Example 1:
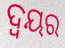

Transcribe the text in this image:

ଦ୍ଵୟର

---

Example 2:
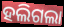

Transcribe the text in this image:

ହଲିଗଲା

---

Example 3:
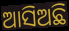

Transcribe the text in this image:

ଆସିଅଛି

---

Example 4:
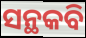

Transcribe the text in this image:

ସନ୍ଥକବି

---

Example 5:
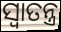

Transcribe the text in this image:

ସ୍ୱାତନ୍ତ୍ର